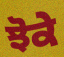
ਝੋਕੇ